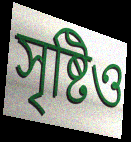
সৃষ্টিও